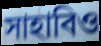
সাহাবিও